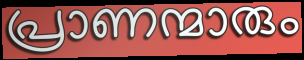
പ്രാണന്മാരും